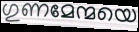
ഗുണമേന്മയെ